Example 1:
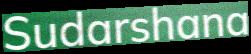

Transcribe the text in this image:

Sudarshana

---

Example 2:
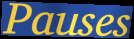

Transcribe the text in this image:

Pauses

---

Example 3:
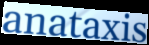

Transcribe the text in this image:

anataxis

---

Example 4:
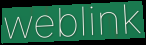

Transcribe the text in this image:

weblink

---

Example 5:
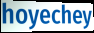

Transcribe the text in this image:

hoyechey